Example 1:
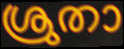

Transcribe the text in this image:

ശ്രുതാ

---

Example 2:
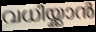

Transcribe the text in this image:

വധിയ്ക്കാൻ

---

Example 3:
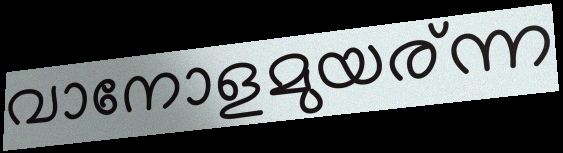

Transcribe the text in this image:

വാനോളമുയര്ന്ന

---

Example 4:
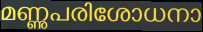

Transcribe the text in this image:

മണ്ണുപരിശോധനാ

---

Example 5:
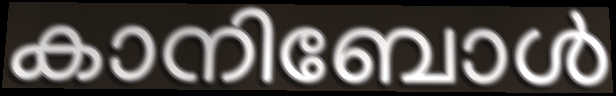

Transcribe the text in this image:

കാനിബോൾ